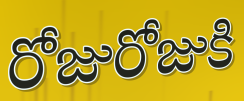
రోజురోజుకి